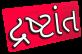
દ્રષ્ટાંત